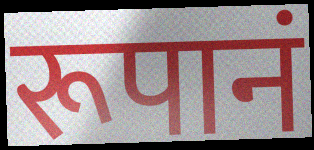
रूपानं